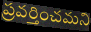
ప్రవర్తించమని